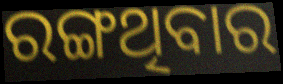
ରଙ୍ଗଥିବାର